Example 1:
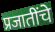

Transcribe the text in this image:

प्रजातींचे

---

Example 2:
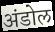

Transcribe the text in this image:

अंडोल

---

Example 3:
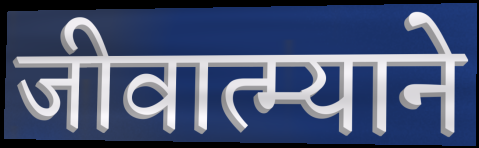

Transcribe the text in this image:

जीवात्म्याने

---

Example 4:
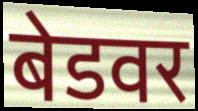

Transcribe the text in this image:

बेडवर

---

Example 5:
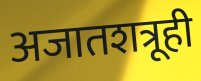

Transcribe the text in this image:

अजातशत्रूही